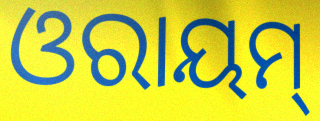
ଓରାୟମ୍